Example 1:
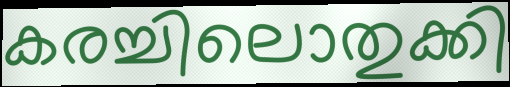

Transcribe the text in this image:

കരച്ചിലൊതുക്കി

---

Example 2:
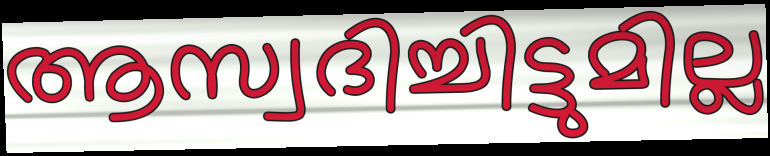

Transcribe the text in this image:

ആസ്വദിച്ചിട്ടുമില്ല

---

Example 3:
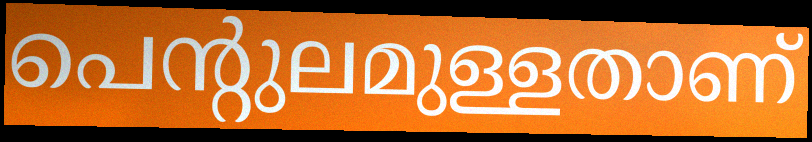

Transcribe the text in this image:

പെന്റുലമുള്ളതാണ്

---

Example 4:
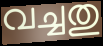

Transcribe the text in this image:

വച്ചതു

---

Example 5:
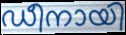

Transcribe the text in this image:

ഡീനായി